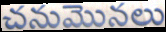
చనుమొనలు